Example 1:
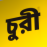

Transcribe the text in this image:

চুরী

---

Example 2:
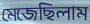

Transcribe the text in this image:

মেজেছিলাম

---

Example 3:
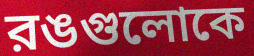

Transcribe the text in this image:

রঙগুলোকে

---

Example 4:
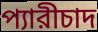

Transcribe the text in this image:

প্যারীচাদ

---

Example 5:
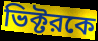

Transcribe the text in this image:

ভিক্টরকে